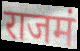
राजमं